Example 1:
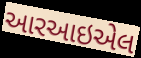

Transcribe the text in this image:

આરઆઇએલ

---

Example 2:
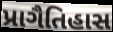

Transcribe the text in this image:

પ્રાગૈતિહાસ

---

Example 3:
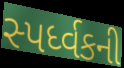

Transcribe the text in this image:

સ્પર્ધ્વકની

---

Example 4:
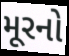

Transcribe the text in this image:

મૂરનો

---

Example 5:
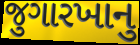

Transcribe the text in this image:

જુગારખાનુ